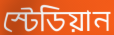
স্টেডিয়ান